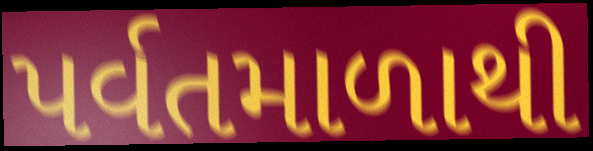
પર્વતમાળાથી